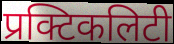
प्रक्टिकलिटी